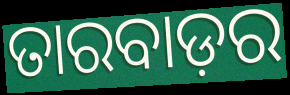
ତାରବାଡ଼ର